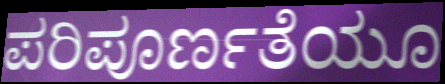
ಪರಿಪೂರ್ಣತೆಯೂ